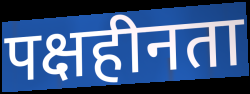
पक्षहीनता